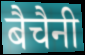
बैचैनी